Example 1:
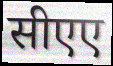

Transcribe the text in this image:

सीएए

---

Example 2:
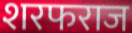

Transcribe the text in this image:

शरफराज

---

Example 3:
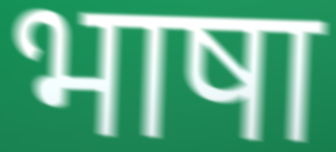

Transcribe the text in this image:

भाषा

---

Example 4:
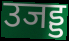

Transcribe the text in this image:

उजड्ड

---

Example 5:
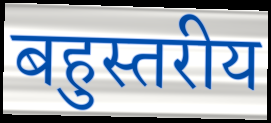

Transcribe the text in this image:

बहुस्तरीय